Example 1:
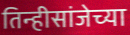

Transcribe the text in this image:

तिन्हीसांजेच्या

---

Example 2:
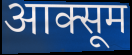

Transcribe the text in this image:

आक्सूम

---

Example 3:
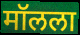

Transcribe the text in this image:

मॉलला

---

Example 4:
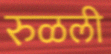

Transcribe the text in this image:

रुळली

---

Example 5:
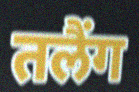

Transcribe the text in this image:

तलैंग